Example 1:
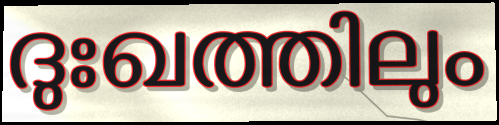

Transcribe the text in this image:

ദുഃഖത്തിലും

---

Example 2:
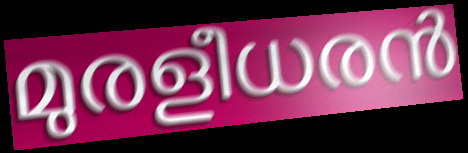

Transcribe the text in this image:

മുരളീധരൻ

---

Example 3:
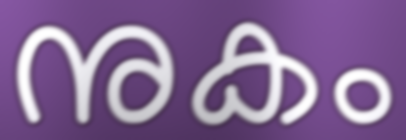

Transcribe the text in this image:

നുകം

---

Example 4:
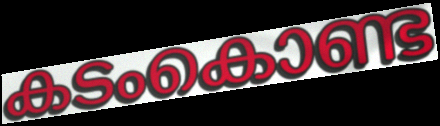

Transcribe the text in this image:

കടംകൊണ്ട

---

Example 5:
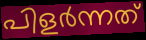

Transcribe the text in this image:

പിളർന്നത്